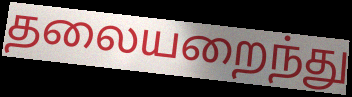
தலையறைந்து